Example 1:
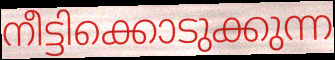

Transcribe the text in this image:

നീട്ടിക്കൊടുക്കുന്ന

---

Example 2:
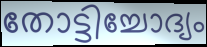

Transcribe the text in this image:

തോട്ടിച്ചോദ്യം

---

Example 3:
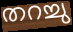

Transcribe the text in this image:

തറച്ചു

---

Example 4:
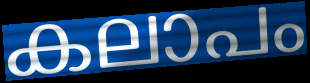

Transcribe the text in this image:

കലാപം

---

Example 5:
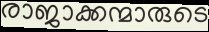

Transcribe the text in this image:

രാജാക്കന്മാരുടെ